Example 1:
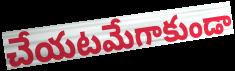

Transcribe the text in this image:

చేయటమేగాకుండా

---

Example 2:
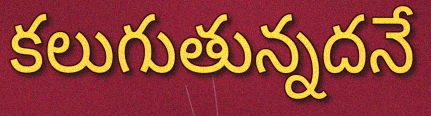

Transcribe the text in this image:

కలుగుతున్నదనే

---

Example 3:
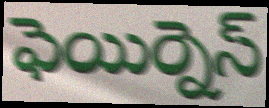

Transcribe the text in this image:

ఫెయిర్నెస్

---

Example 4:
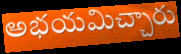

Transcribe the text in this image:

అభయమిచ్చారు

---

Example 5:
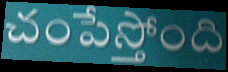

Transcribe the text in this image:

చంపేస్తోంది